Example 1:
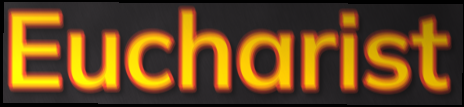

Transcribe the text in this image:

Eucharist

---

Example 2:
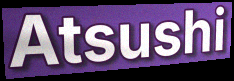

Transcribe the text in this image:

Atsushi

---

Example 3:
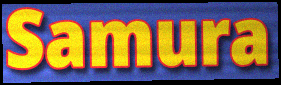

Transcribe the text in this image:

Samura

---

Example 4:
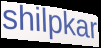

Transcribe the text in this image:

shilpkar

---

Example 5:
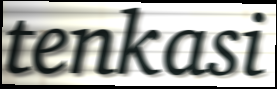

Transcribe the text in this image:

tenkasi